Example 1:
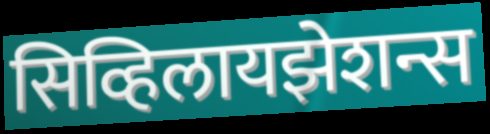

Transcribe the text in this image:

सिव्हिलायझेशन्स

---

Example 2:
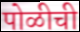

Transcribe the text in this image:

पोळीची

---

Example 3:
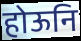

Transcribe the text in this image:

होऊनि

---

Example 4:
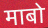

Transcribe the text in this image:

माबो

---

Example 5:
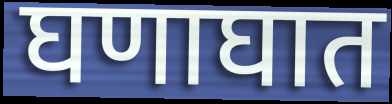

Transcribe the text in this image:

घणाघात